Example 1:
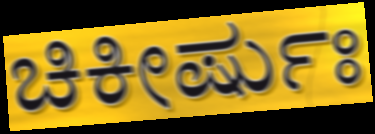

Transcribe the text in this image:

ಚಿಕೀರ್ಷುಃ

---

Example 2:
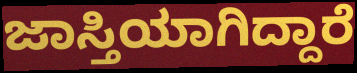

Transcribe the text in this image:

ಜಾಸ್ತಿಯಾಗಿದ್ದಾರೆ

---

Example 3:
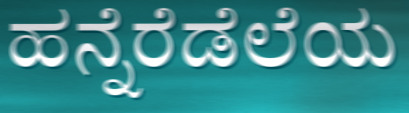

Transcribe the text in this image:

ಹನ್ನೆರೆಡೆಲೆಯ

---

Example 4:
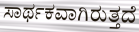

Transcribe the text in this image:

ಸಾರ್ಥಕವಾಗಿರುತ್ತದೆ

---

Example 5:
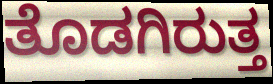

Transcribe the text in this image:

ತೊಡಗಿರುತ್ತ